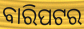
ବାରିପଟର